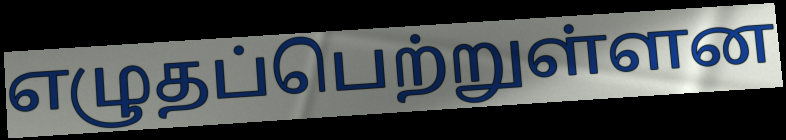
எழுதப்பெற்றுள்ளன